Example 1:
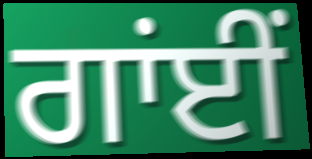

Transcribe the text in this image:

ਗਾਂਈਂ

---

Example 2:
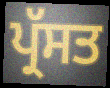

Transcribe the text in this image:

ਪ੍ਰੱਸਤ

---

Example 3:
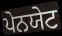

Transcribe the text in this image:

ਪੇਨਯੇਟ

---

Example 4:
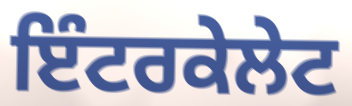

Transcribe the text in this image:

ਇੰਟਰਕੇਲੇਟ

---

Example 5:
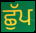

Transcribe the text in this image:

ਛੁੱਪ